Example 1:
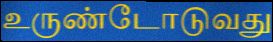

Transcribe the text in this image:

உருண்டோடுவது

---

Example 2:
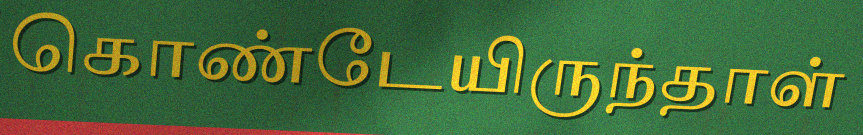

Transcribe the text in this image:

கொண்டேயிருந்தாள்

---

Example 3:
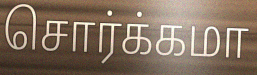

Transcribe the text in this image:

சொர்க்கமா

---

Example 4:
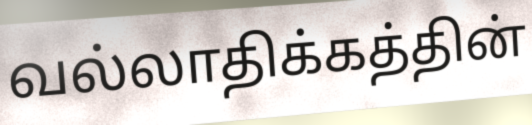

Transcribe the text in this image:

வல்லாதிக்கத்தின்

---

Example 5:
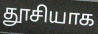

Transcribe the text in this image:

தூசியாக